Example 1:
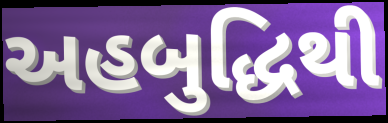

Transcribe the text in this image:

અહબુદ્ધિથી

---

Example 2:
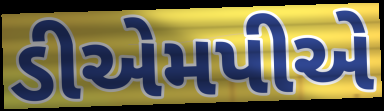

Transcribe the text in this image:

ડીએમપીએ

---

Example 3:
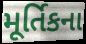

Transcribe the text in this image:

મૂર્તિકના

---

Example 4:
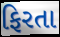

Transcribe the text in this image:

ફિરતા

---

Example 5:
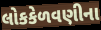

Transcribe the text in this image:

લોકકેળવણીના